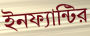
ইনফ্যান্টির